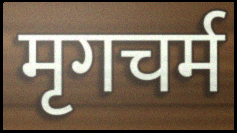
मृगचर्म